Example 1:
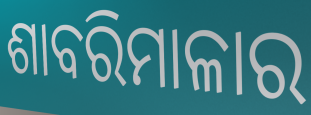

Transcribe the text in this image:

ଶାବରିମାଳାର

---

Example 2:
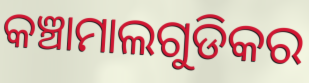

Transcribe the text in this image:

କଞ୍ଚାମାଲଗୁଡିକର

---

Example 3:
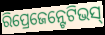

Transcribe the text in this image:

ରିପ୍ରେଜେନ୍ଟେଟିଭସ୍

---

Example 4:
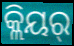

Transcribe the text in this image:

କ୍ଲିୟର୍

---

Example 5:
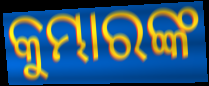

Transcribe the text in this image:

କୁମ୍ଭାରଙ୍କ